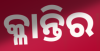
କ୍ଳାନ୍ତିର